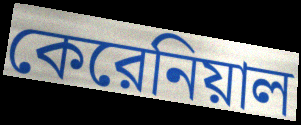
কেরেনিয়াল